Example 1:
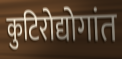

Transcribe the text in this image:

कुटिरोद्योगांत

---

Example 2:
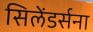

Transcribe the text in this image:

सिलेंडर्सना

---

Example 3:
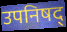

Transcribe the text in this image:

उपनिषद्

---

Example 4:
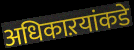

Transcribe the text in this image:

अधिकाऱयांकडे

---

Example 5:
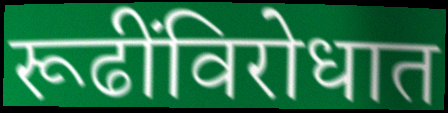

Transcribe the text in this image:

रूढींविरोधात